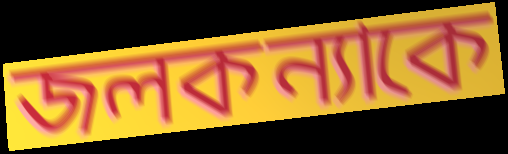
জলকন্যাকে